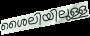
ശൈലിയിലുള്ള